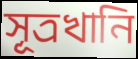
সূত্রখানি